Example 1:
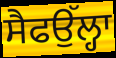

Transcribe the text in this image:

ਸੈਫਉੱਲ੍ਹਾ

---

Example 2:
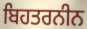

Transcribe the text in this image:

ਬਿਹਤਰਨੀਨ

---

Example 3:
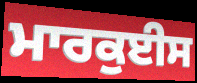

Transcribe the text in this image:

ਮਾਰਕੁਈਸ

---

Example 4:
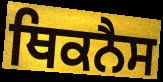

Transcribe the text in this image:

ਥਿਕਨੈਸ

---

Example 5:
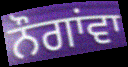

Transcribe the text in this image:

ਨੌਗਾਂਵਾ